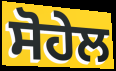
ਸੋਹੇਲ